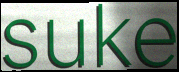
suke